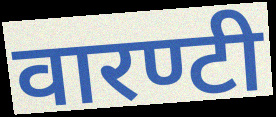
वारण्टी